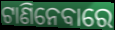
ଟାଣିନେବାରେ